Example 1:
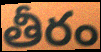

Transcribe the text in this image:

తీరం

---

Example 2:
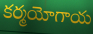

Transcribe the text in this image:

కర్మయోగాయ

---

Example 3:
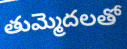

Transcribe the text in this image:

తుమ్మెదలతో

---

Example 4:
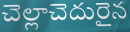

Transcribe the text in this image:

చెల్లాచెదురైన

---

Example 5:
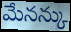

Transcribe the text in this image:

మేనన్కు